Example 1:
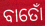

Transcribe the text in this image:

ବାତୋଁ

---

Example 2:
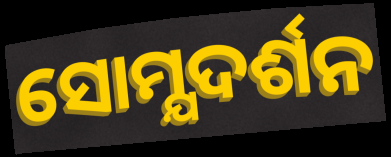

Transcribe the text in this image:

ସୋମ୍ଯଦର୍ଶନ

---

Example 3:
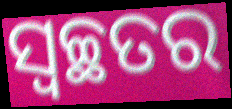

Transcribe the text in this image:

ସ୍ଵଚ୍ଛତର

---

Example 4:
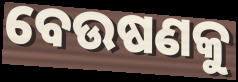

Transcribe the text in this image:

ବେଉଷଣକୁ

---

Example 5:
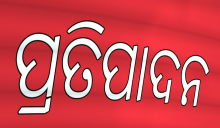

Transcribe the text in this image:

ପ୍ରତିପାଦନ